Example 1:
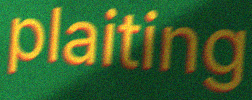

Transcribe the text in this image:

plaiting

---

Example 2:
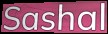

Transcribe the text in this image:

Sashal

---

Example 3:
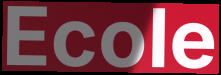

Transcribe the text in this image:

Ecole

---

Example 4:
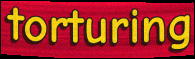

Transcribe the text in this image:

torturing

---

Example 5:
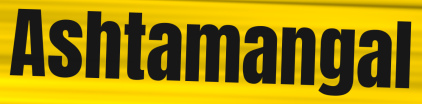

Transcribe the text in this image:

Ashtamangal